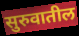
सुरुवातील